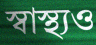
স্বাস্থ্যও